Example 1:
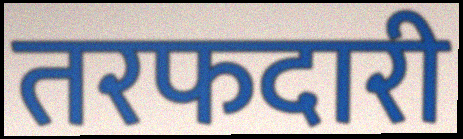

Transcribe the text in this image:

तरफदारी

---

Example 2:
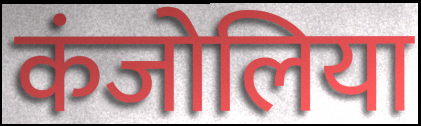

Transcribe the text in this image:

कंजोलिया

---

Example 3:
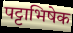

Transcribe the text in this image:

पट्टाभिषेक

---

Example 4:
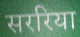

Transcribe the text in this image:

सररिया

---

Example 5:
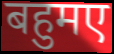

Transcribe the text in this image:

बहुमए